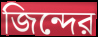
জিন্দের